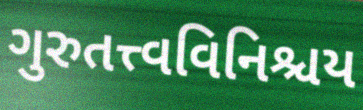
ગુરુતત્ત્વવિનિશ્ચય